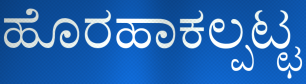
ಹೊರಹಾಕಲ್ಪಟ್ಟ